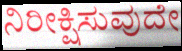
ನಿರೀಕ್ಷಿಸುವುದೇ